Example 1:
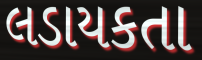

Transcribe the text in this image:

લડાયકતા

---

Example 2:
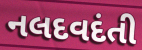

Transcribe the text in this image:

નલદવદંતી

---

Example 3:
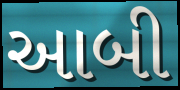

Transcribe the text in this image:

આબી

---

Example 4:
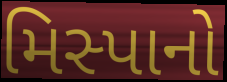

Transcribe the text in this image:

મિસ્પાનો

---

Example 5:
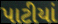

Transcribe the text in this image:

પાટીયાં